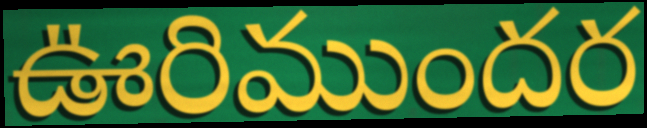
ఊరిముందర